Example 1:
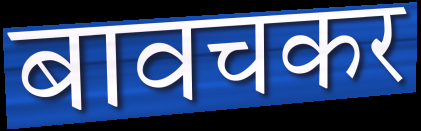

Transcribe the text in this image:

बावचकर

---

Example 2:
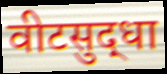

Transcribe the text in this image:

वीटसुद्धा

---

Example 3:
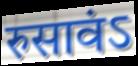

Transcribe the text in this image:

रुसावंऽ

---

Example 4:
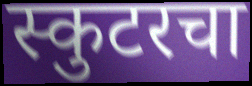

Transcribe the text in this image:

स्कुटरचा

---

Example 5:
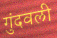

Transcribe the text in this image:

गुंदवली